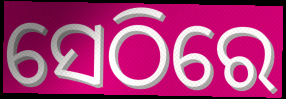
ସେଠିରେ